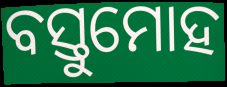
ବସ୍ତୁମୋହ